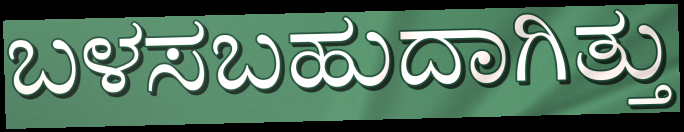
ಬಳಸಬಹುದಾಗಿತ್ತು